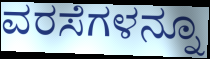
ವರಸೆಗಳನ್ನೂ